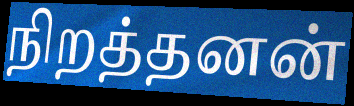
நிறத்தனன்